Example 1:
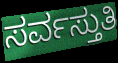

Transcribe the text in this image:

ಸರ್ವಸ್ತುತಿ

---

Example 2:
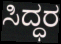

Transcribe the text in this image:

ಸಿದ್ಧರ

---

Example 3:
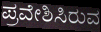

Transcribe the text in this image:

ಪ್ರವೇಶಿಸಿರುವ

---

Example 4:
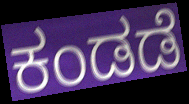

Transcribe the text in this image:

ಕಂಡಡೆ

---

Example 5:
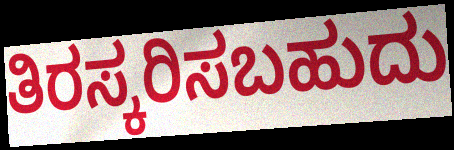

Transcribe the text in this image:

ತಿರಸ್ಕರಿಸಬಹುದು